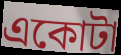
একোটা